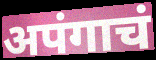
अपंगाचं